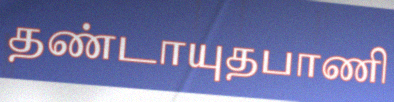
தண்டாயுதபாணி